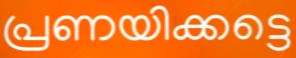
പ്രണയിക്കട്ടെ